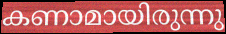
കണാമായിരുന്നു